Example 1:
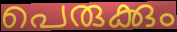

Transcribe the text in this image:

പെരുക്കും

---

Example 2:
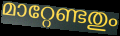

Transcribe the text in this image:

മാറ്റേണ്ടതും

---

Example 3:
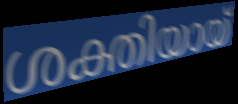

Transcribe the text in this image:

ശക്തിയായ്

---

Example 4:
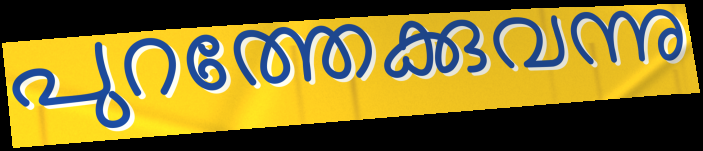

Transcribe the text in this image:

പുറത്തേക്കുവന്നു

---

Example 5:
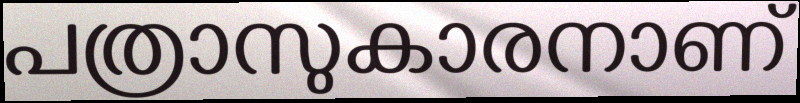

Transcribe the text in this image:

പത്രാസുകാരനാണ്